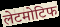
लेटमोटिफ